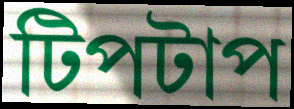
টিপটাপ